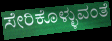
ಸೇರಿಕೊಳ್ಳುವಂತೆ